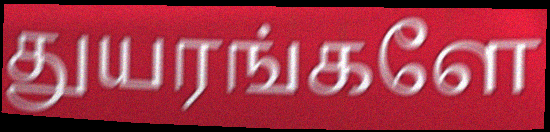
துயரங்களே